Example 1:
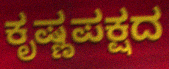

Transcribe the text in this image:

ಕೃಷ್ಣಪಕ್ಷದ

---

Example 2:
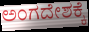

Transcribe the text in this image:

ಅಂಗದೇಶಕ್ಕೆ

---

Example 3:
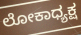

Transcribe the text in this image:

ಲೋಕಾಧ್ಯಕ್ಷ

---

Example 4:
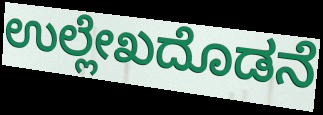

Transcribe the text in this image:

ಉಲ್ಲೇಖದೊಡನೆ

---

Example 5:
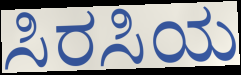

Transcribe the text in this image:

ಸಿರಸಿಯ